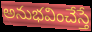
అనుభవించేస్తే